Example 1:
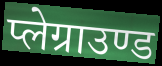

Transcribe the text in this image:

प्लेग्राउण्ड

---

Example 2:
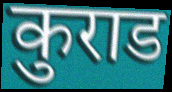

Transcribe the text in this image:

कुराड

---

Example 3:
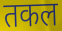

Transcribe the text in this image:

तकल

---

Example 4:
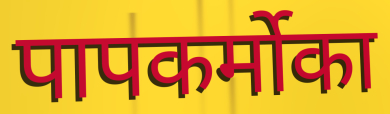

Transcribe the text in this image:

पापकर्मोका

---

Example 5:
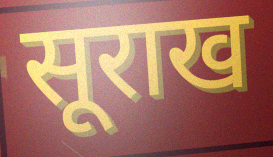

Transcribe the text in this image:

सूराख